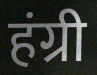
हंग्री